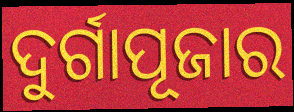
ଦୁର୍ଗାପୂଜାର